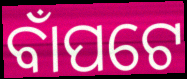
ବାଁପଟେ